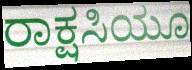
ರಾಕ್ಷಸಿಯೂ